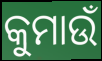
କୁମାଉଁ